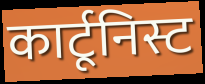
कार्टूनिस्ट